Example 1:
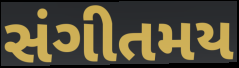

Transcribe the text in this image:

સંગીતમય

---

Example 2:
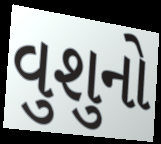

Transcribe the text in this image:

વુશુનો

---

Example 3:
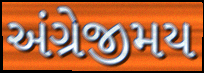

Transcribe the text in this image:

અંગ્રેજીમય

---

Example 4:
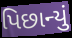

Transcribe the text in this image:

પિછાન્યું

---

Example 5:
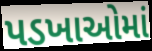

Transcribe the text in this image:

પડખાઓમાં